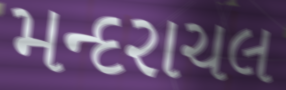
મન્દરાચલ